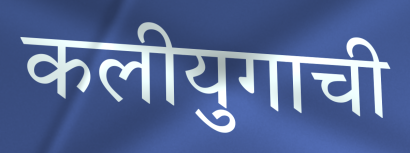
कलीयुगाची